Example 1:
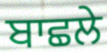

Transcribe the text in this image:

ਬਾਛਲੇ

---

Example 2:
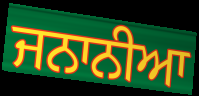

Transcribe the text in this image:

ਜਨਾਨੀਆ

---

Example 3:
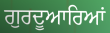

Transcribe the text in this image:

ਗੁਰਦੂਆਰਿਆਂ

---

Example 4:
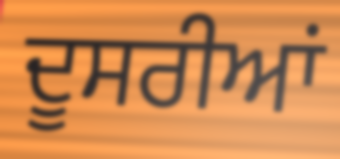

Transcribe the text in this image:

ਦੂਸਰੀਆਂ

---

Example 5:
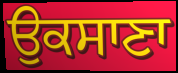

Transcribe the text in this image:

ਉਕਸਾਣਾ